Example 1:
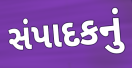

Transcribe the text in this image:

સંપાદકનું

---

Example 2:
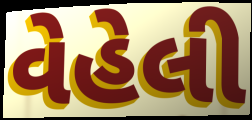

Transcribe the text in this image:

વેહેલી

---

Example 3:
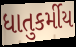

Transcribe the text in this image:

ધાતુકર્મીય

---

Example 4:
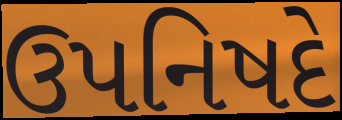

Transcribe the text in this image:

ઉપનિષદે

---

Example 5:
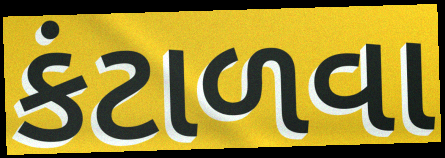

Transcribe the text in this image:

કંટાળવા